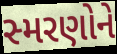
સ્મરણોને